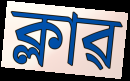
ক্লাৱ